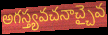
అగస్త్యవచనాచ్చైవ